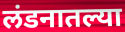
लंडनातल्या